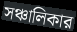
সঞ্চালিকার